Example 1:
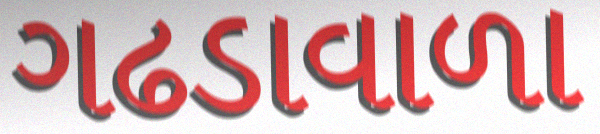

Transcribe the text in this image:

ગઢડાવાળા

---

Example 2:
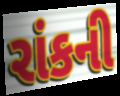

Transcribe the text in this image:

રાંકની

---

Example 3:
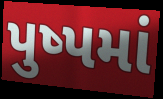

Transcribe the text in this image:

પુષ્પમાં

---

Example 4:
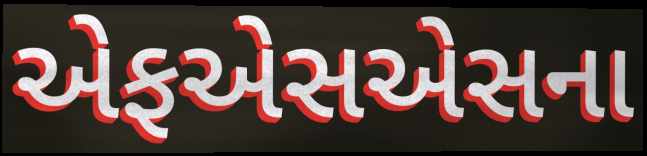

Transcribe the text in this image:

એફએસએસના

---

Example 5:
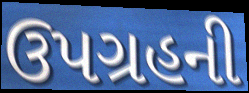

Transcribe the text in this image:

ઉપગ્રહની